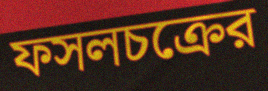
ফসলচক্রের